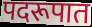
पदरूपात